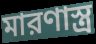
মারণাস্ত্র